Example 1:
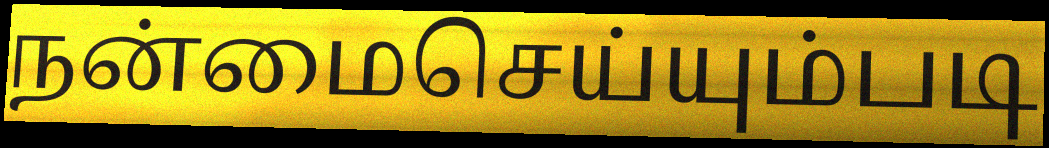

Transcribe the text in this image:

நன்மைசெய்யும்படி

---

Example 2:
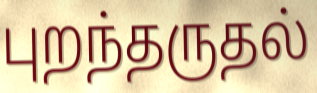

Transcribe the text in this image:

புறந்தருதல்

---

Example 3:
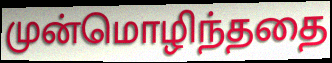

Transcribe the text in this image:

முன்மொழிந்ததை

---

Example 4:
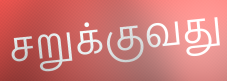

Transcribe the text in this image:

சறுக்குவது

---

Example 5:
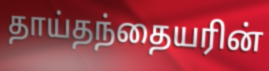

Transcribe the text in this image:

தாய்தந்தையரின்